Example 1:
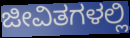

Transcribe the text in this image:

ಜೀವಿತಗಳಲ್ಲಿ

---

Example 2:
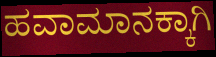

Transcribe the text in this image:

ಹವಾಮಾನಕ್ಕಾಗಿ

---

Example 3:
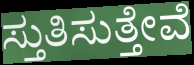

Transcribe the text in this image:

ಸ್ತುತಿಸುತ್ತೇವೆ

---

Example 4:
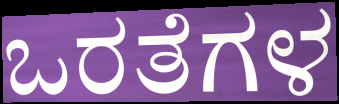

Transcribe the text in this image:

ಒರತೆಗಳ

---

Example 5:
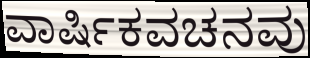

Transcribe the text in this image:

ವಾರ್ಷಿಕವಚನವು